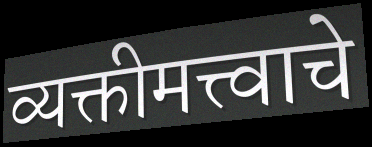
व्यक्तीमत्त्वाचे